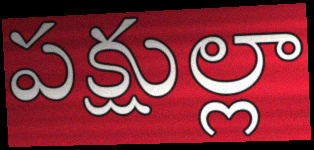
పక్షుల్లా